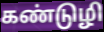
கண்டுழி